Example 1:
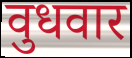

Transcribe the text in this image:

वुधवार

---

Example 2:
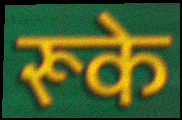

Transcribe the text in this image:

रूके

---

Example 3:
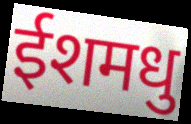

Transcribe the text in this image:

ईशमधु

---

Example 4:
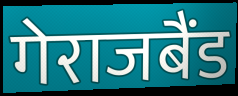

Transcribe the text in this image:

गेराजबैंड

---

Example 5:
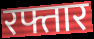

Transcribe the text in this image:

रफ्तार